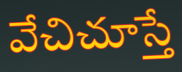
వేచిచూస్తే